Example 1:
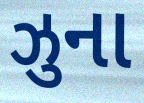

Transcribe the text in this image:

ઝુના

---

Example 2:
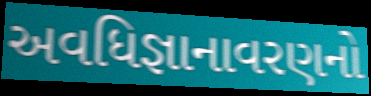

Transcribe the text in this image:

અવધિજ્ઞાનાવરણનો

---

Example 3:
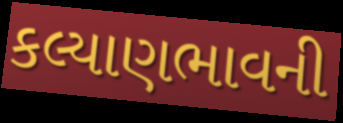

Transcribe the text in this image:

કલ્યાણભાવની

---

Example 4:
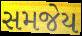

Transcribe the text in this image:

સમજેય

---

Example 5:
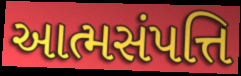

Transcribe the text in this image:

આત્મસંપત્તિ